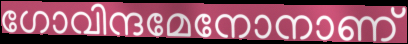
ഗോവിന്ദമേനോനാണ്